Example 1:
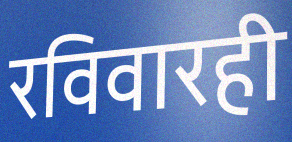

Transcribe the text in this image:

रविवारही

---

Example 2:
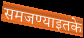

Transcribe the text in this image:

समजण्याइतके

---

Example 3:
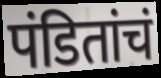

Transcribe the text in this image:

पंडितांचं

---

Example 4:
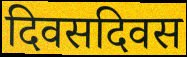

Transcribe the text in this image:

दिवसदिवस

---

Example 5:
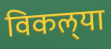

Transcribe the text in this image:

विकल्या